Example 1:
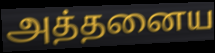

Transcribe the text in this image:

அத்தனைய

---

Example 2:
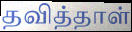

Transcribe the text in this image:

தவித்தாள்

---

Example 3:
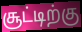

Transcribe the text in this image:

சூட்டிற்கு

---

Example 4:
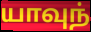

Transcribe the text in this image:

யாவுந்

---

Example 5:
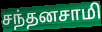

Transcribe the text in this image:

சந்தனசாமி